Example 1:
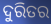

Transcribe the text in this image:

ଦୁରିତର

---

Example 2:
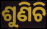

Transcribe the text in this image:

ଶୁଣିଚି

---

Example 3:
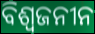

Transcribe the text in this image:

ବିଶ୍ୱଜନୀନ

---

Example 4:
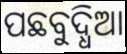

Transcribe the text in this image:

ପଛବୁଦ୍ଧିଆ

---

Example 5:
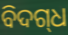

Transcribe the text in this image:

ବିଦଗ୍‌ଧ